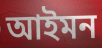
আইমন